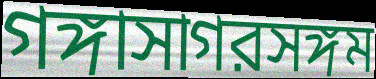
গঙ্গাসাগরসঙ্গম